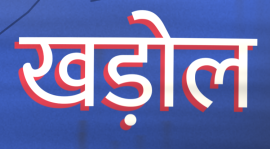
खड़ोल